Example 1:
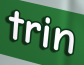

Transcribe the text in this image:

trin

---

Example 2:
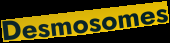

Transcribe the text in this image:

Desmosomes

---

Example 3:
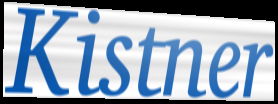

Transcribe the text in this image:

Kistner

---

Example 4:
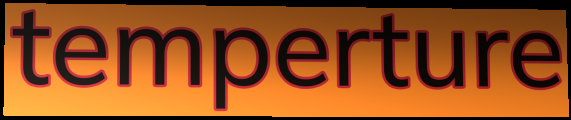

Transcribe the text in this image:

temperture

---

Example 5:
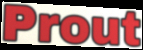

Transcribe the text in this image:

Prout